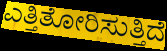
ಎತ್ತಿತೋರಿಸುತ್ತಿದೆ